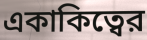
একাকিত্বের